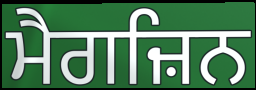
ਮੈਗਜ਼ਿਨ